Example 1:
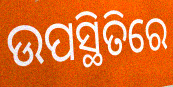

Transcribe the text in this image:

ଉପସ୍ଥିତିରେ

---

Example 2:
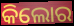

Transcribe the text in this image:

କିଲୋର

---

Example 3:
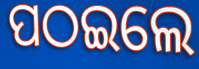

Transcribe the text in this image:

ପଠଇଲେ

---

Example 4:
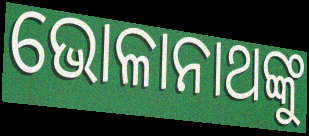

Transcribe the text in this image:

ଭୋଳାନାଥଙ୍କୁ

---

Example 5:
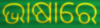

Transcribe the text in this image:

ଭାଷାରେ